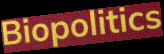
Biopolitics